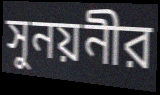
সুনয়নীর